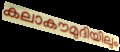
കലാകൗമുദിയിലും